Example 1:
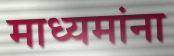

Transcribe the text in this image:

माध्यमांना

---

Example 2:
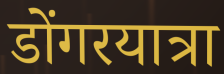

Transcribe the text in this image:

डोंगरयात्रा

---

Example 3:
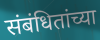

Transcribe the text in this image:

संबंधितांच्या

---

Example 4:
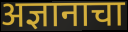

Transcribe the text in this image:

अज्ञानाचा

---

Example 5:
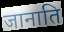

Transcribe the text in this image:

जानाति